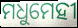
ମଧୁମେହୀ